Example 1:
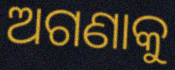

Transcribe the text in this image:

ଅଗଣାକୁ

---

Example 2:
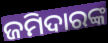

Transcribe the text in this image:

ଜମିଦାରଙ୍କ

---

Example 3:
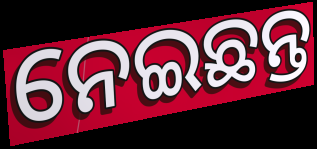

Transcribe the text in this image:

ନେଇଛନ୍ତ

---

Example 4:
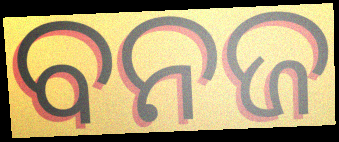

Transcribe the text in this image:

ବନଜ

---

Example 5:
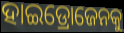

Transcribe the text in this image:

ହାଇଡ୍ରୋଜେନକୁ